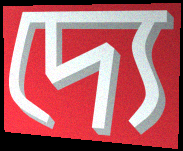
দ্যে